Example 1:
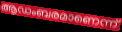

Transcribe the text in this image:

ആഡംബരമാണെന്ന്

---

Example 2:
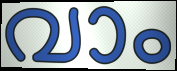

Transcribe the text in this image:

വാം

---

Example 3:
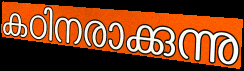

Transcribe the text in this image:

കഠിനരാക്കുന്നു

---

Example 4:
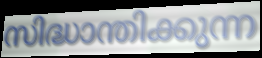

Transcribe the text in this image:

സിദ്ധാന്തിക്കുന്ന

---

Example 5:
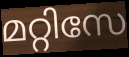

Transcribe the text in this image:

മറ്റിസേ